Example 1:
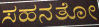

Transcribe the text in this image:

ಸಹನತೋ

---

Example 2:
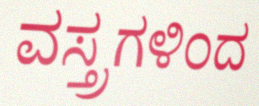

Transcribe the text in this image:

ವಸ್ತ್ರಗಳಿಂದ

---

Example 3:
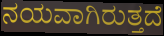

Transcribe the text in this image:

ನಯವಾಗಿರುತ್ತದೆ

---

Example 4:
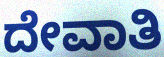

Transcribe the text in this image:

ದೇವಾತಿ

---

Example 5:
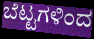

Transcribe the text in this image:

ಬೆಟ್ಟಗಳಿಂದ